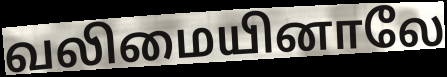
வலிமையினாலே